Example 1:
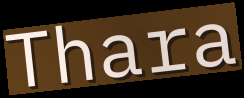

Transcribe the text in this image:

Thara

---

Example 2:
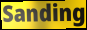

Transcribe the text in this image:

Sanding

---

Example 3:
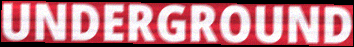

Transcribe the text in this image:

UNDERGROUND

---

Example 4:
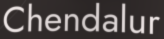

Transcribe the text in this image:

Chendalur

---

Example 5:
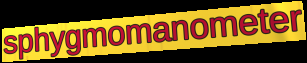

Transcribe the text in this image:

sphygmomanometer